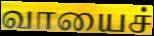
வாயைச்